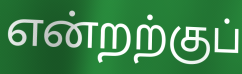
என்றற்குப்